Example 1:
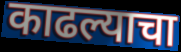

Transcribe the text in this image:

काढल्याचा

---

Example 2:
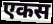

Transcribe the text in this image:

एकस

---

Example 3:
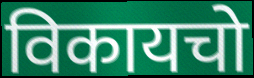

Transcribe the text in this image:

विकायचो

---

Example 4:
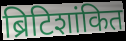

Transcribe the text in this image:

ब्रिटिशांकित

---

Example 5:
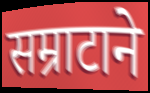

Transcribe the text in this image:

सम्राटाने